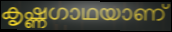
കൃഷ്ണഗാഥയാണ്